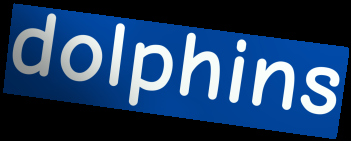
dolphins